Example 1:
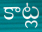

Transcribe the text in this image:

కాట్ల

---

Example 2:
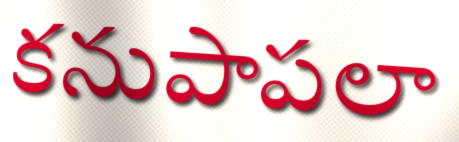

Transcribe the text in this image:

కనుపాపలా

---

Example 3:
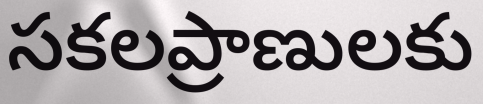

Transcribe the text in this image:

సకలప్రాణులకు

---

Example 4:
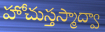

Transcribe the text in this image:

హోచుస్తస్మాద్వా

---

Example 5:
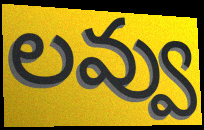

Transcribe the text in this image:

లవ్వు